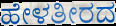
ಹೇಳತೀರದ